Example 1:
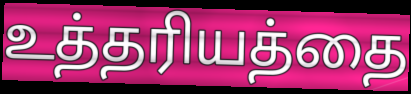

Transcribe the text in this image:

உத்தரியத்தை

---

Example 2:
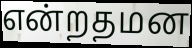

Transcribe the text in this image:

என்றதமன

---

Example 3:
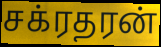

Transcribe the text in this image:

சக்ரதரன்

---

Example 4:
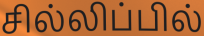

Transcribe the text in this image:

சில்லிப்பில்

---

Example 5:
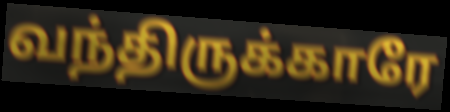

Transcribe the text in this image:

வந்திருக்காரே